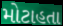
મોટાહતા